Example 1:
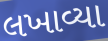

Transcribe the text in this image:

લખાવ્યા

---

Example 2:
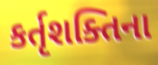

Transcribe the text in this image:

કર્તૃશક્તિના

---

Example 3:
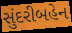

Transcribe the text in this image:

સુંદરીબહેન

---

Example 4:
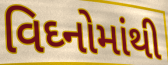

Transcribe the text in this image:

વિઘ્નોમાંથી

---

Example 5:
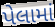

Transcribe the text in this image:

પેલામાં